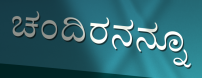
ಚಂದಿರನನ್ನೂ